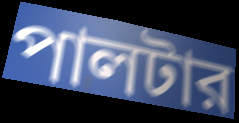
পালটার